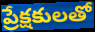
ప్రేక్షకులతో